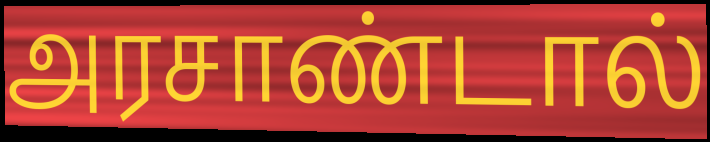
அரசாண்டால்